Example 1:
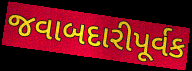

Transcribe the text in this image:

જવાબદારીપૂર્વક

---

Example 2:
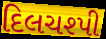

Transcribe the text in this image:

દિલચશ્પી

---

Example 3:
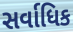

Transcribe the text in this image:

સર્વાધિક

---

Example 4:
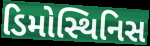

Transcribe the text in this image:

ડિમોસ્થિનિસ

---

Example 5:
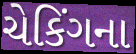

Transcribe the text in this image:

ચેકિંગના